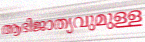
ആഭിജാത്യവുമുള്ള